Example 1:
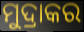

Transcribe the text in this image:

ମୁଦ୍ରାକର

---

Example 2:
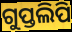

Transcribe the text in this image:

ଗୁପ୍ତଲିପି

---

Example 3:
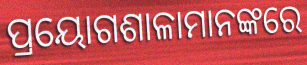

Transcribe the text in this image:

ପ୍ରୟୋଗଶାଳାମାନଙ୍କରେ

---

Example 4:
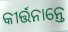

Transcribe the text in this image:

କୀର୍ତ୍ତନାନ୍ତେ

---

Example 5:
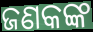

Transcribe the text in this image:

ଜଣକଙ୍କ